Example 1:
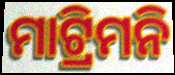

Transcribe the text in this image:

ମାଟ୍ରିମନି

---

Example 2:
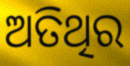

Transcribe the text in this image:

ଅତିଥିର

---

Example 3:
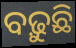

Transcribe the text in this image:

ବଢ଼ୁଛି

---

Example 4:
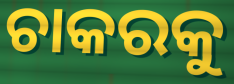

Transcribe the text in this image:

ଚାକରକୁ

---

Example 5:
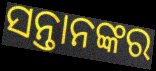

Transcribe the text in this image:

ସନ୍ତାନଙ୍କର